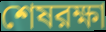
শেষরক্ষা